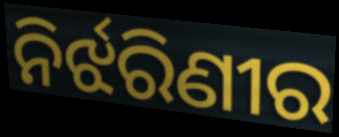
ନିର୍ଝରିଣୀର